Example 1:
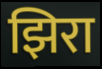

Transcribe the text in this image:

झिरा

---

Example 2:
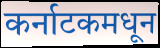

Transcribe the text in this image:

कर्नाटकमधून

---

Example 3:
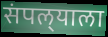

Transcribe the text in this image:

संपल्याला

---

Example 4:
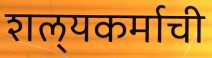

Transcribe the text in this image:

शल्यकर्माची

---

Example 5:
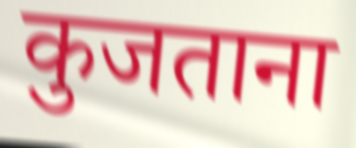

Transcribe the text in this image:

कुजताना